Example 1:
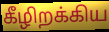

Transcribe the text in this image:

கீழிறக்கிய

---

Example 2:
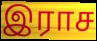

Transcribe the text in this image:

இராச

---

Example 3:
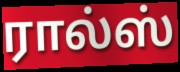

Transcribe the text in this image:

ரால்ஸ்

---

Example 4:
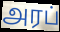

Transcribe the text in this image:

அரப்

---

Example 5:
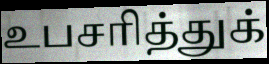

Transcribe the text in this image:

உபசரித்துக்